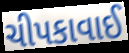
ચીપકાવાઈ